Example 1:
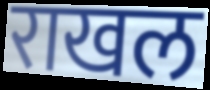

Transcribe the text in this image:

राखल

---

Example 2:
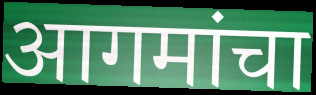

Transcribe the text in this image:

आगमांचा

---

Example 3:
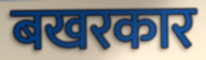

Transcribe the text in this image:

बखरकार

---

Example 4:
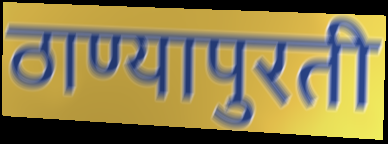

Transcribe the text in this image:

ठाण्यापुरती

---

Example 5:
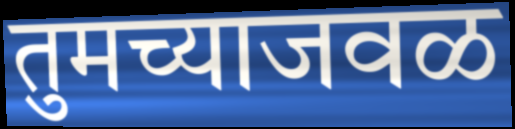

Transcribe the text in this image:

तुमच्याजवळ